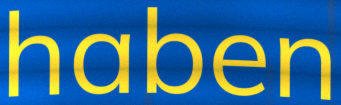
haben